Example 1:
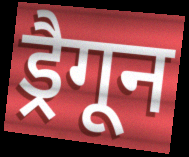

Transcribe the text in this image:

ड्रैगून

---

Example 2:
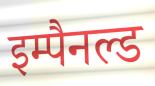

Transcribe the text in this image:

इम्पैनल्ड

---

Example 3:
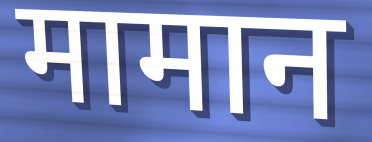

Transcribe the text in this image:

मामान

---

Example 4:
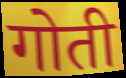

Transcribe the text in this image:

गोती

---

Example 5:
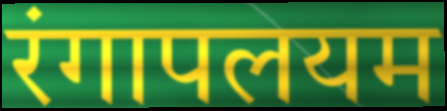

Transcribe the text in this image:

रंगापलयम